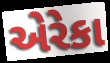
એરેકા